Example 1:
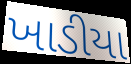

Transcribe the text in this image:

ખાડીયા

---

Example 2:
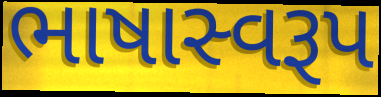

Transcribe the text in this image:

ભાષાસ્વરૂપ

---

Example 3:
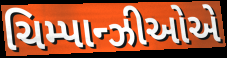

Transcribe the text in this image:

ચિમ્પાન્ઝીઓએ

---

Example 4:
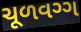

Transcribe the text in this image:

ચૂળવગ્ગ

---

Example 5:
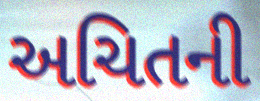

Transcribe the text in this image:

અચિતની